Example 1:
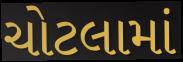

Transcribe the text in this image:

ચોટલામાં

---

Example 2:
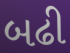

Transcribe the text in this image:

બઢી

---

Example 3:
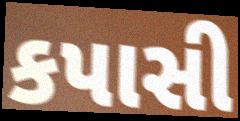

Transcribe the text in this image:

કપાસી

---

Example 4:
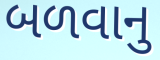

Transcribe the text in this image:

બળવાનુ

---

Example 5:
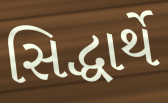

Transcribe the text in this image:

સિદ્ધાર્થે